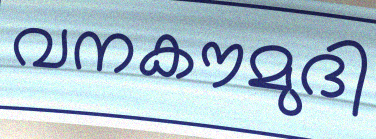
വനകൗമുദി